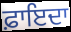
ਫ਼ਾਇਦਾ